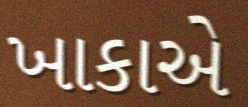
ખાકાએ